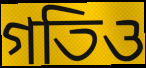
গতিও